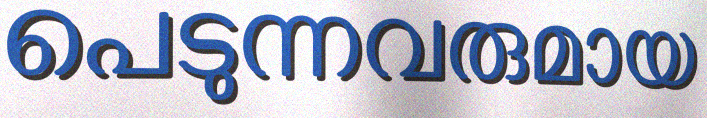
പെടുന്നവരുമായ